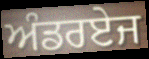
ਅੰਡਰਏਜ